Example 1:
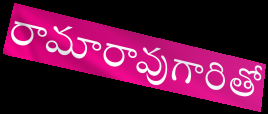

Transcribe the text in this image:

రామారావుగారితో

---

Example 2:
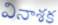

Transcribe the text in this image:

వినాశక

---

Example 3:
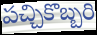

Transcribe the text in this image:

పచ్చికొబ్బరి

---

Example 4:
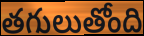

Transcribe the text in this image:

తగులుతోంది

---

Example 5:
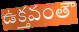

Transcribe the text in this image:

ఉక్తవంతౌ